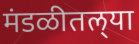
मंडळीतल्या